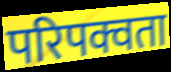
परिपक्‍वता